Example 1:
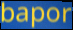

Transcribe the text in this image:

bapor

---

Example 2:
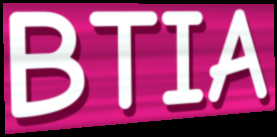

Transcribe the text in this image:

BTIA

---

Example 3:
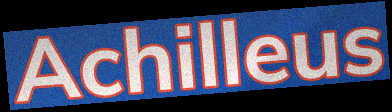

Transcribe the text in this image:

Achilleus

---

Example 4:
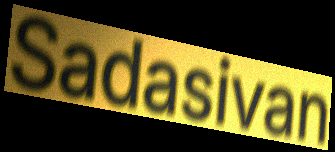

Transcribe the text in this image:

Sadasivan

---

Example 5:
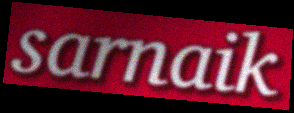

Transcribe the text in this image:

sarnaik